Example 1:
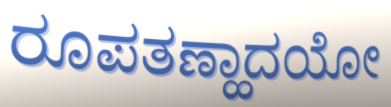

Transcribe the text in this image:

ರೂಪತಣ್ಹಾದಯೋ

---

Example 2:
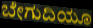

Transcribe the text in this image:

ಬೇಗುದಿಯೂ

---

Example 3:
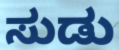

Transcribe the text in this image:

ಸುಡು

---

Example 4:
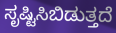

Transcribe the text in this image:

ಸೃಷ್ಟಿಸಿಬಿಡುತ್ತದೆ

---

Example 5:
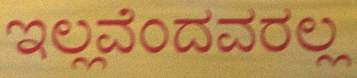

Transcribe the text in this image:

ಇಲ್ಲವೆಂದವರಲ್ಲ